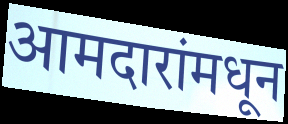
आमदारांमधून